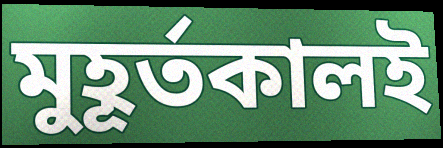
মুহূর্তকালই